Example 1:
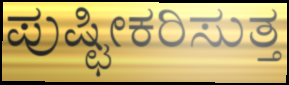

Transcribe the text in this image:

ಪುಷ್ಟೀಕರಿಸುತ್ತ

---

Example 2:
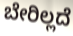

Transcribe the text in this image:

ಬೇರಿಲ್ಲದೆ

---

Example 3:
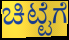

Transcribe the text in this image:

ಚಿಟ್ಟೆಗೆ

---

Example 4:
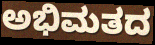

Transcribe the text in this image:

ಅಭಿಮತದ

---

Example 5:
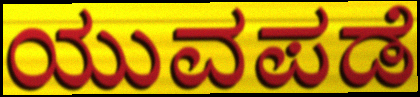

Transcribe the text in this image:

ಯುವಪಡೆ